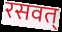
रसवत्